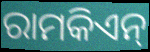
ରାମକିଏନ୍